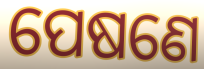
ପେଷଣେ